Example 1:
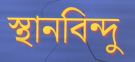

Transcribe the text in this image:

স্থানবিন্দু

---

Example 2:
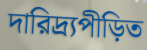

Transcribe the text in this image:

দারিদ্র্যপীড়িত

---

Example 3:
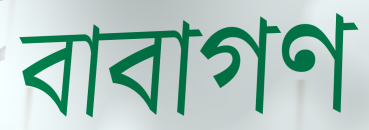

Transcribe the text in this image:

বাবাগণ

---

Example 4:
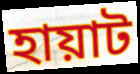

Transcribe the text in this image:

হায়াট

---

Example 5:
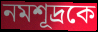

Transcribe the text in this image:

নমশূদ্রকে